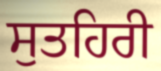
ਸੁਤਹਿਰੀ